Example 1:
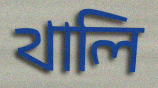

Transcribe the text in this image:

থালি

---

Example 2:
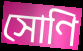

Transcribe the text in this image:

সোণি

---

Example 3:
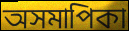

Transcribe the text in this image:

অসমাপিকা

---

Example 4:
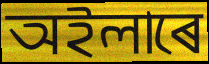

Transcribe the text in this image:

অইলাৰে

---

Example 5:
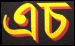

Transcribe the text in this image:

এচ